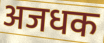
अजधक